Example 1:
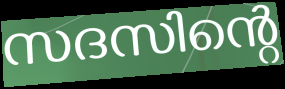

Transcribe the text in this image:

സദസിന്റെ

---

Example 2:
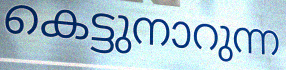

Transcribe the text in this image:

കെട്ടുനാറുന്ന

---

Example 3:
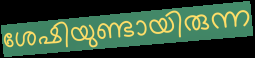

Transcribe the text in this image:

ശേഷിയുണ്ടായിരുന്ന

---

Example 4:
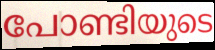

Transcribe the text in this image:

പോണ്ടിയുടെ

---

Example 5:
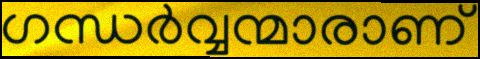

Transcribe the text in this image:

ഗന്ധർവ്വന്മാരാണ്